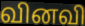
வினவி